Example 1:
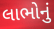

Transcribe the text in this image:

લાભોનું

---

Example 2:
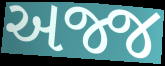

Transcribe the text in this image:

અજ્જ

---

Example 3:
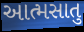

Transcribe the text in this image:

આત્મસાતુ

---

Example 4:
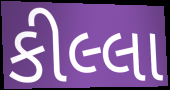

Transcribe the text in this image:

કીલ્લા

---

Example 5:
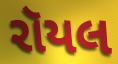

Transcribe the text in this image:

રૉયલ